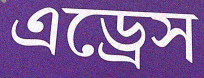
এড্রেস